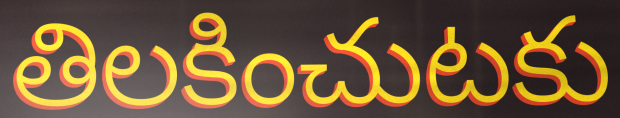
తిలకించుటకు